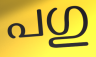
പഗു